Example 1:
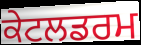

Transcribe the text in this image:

ਕੇਟਲਡਰਮ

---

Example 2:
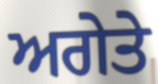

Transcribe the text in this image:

ਅਗੇਤੇ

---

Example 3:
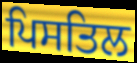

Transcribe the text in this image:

ਪਿਸਤਿਲ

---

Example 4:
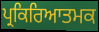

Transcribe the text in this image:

ਪ੍ਰਕਿਰਿਆਤਮਕ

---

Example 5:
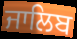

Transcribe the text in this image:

ਜਾਲਿਬ